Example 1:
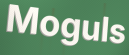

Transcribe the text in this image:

Moguls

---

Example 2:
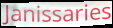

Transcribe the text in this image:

Janissaries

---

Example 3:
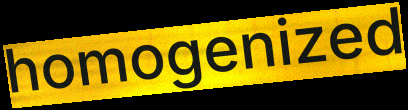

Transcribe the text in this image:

homogenized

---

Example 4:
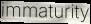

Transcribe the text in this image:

immaturity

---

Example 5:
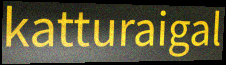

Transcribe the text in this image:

katturaigal